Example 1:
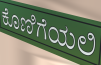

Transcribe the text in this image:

ಕೊಣಿಗೆಯಲಿ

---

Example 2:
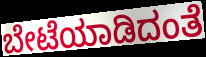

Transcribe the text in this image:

ಬೇಟೆಯಾಡಿದಂತೆ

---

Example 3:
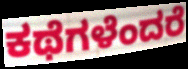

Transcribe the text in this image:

ಕಥೆಗಳೆಂದರೆ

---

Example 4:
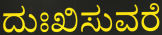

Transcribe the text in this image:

ದುಃಖಿಸುವರೆ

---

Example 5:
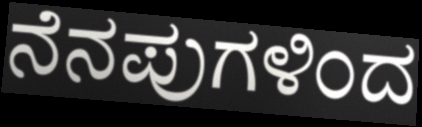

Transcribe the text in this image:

ನೆನಪುಗಳಿಂದ